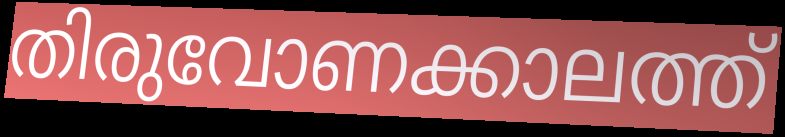
തിരുവോണക്കാലത്ത്